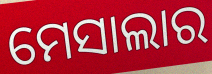
ମେସାଲାର